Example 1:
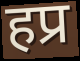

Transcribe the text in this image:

हप्र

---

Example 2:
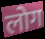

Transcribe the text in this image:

लोग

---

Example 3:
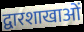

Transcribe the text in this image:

द्वारशाखाओं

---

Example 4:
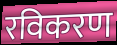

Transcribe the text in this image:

रविकरण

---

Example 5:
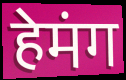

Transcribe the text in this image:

हेमंग